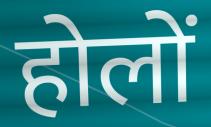
होलों